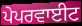
ਪੇਪਰਵਾਈਟ